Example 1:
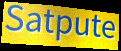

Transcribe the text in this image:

Satpute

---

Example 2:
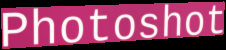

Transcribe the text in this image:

Photoshot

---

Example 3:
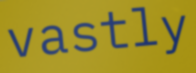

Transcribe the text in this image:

vastly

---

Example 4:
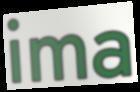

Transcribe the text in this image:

ima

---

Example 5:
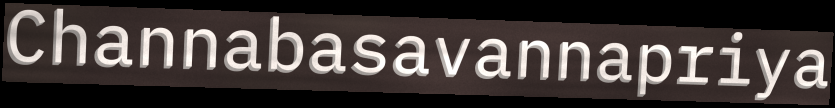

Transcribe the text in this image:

Channabasavannapriya